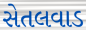
સેતલવાડ